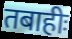
तबाहीः